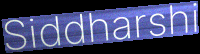
Siddharshi